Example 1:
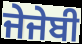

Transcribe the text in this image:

ਜੇਜੇਬੀ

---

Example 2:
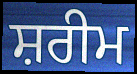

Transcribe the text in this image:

ਸ਼ਰੀਮ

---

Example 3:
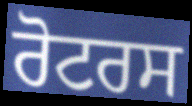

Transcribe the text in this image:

ਰੋਟਰਸ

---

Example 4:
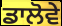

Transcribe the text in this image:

ਡਾਲੋਵੇ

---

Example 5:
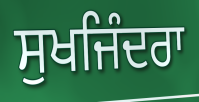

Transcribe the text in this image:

ਸੁਖਜਿੰਦਰਾ